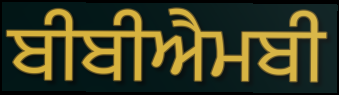
ਬੀਬੀਐਮਬੀ